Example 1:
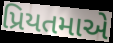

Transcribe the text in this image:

પ્રિયતમાએ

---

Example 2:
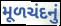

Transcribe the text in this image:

મૂળચંદનું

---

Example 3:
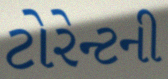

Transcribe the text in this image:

ટોરેન્ટની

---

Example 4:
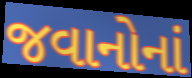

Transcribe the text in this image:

જવાનોનાં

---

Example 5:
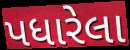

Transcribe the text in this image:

પધારેલા